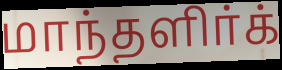
மாந்தளிர்க்